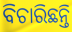
ବିଚାରିଛନ୍ତି